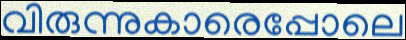
വിരുന്നുകാരെപ്പോലെ